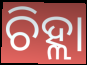
ଚିହ୍ଲା